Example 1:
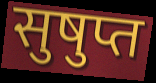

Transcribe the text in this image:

सुषुप्त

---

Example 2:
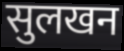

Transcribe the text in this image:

सुलखन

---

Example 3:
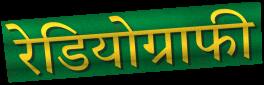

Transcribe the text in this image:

रेडियोग्राफी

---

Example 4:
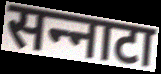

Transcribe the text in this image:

सन्‍नाटा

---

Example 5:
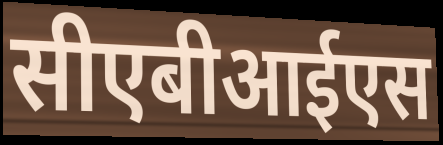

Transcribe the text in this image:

सीएबीआईएस